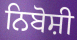
ਨਿਬੋਸ਼ੀ